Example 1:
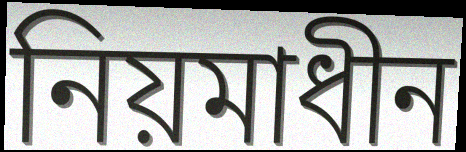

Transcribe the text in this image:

নিয়মাধীন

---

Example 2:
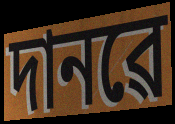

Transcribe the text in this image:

দানৱে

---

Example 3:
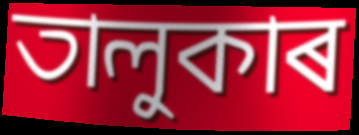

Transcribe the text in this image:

তালুকাৰ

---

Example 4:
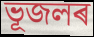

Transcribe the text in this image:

ভূজলৰ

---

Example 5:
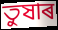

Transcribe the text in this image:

তুষাৰ